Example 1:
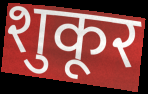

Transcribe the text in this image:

शुकूर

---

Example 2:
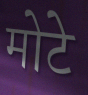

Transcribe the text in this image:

मोटे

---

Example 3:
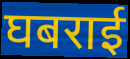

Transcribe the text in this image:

घबराई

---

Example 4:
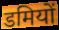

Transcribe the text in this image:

डमियों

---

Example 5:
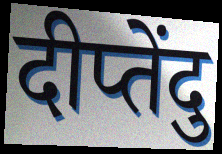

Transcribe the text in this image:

दीप्तेंदु